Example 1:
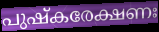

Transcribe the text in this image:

പുഷ്കരേക്ഷണഃ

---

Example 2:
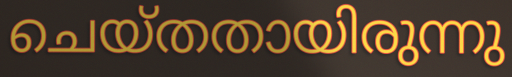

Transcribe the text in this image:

ചെയ്തതായിരുന്നു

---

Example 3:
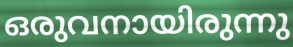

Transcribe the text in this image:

ഒരുവനായിരുന്നു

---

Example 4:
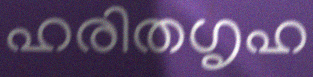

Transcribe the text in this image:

ഹരിതഗൃഹ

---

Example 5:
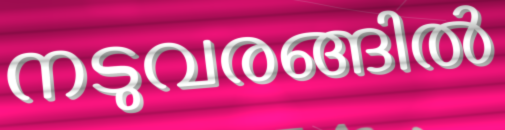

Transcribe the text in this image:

നടുവരങ്ങിൽ